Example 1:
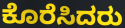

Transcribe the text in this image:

ಕೊರೆಸಿದರು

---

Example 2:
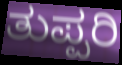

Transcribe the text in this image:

ತುಪ್ಪರಿ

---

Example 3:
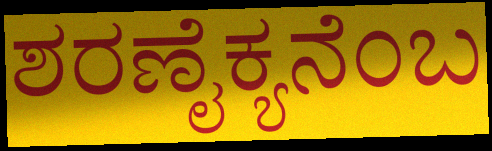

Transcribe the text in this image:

ಶರಣೈಕ್ಯನೆಂಬ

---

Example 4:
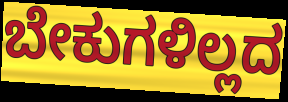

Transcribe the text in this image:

ಬೇಕುಗಳಿಲ್ಲದ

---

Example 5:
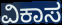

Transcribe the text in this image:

ವಿಕಾಸ